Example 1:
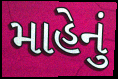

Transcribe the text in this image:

માહેનું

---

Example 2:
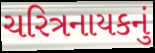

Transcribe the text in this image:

ચરિત્રનાયકનું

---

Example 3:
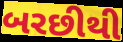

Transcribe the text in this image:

બરછીથી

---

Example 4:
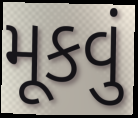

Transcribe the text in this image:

મૂકવું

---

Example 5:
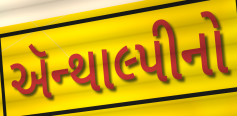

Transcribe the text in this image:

ઍન્થાલ્પીનો